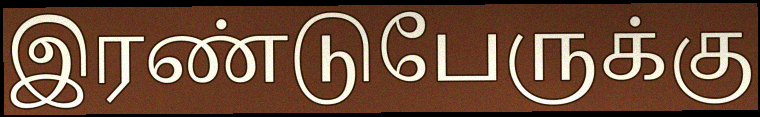
இரண்டுபேருக்கு